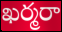
ఖర్మరా